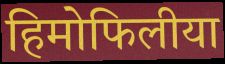
हिमोफिलीया